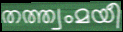
തത്ത്വംമയീ